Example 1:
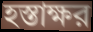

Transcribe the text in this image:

হস্তাক্ষর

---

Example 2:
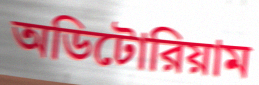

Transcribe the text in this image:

অডিটোরিয়াম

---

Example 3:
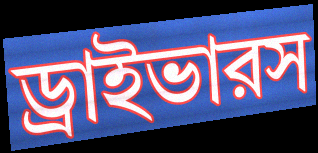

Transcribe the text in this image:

ড্রাইভারস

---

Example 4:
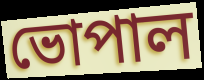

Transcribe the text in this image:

ভোপাল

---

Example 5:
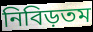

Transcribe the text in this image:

নিবিড়তম